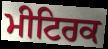
ਮੀਟਿਰਕ